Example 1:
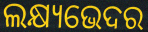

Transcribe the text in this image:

ଲକ୍ଷ୍ୟଭେଦର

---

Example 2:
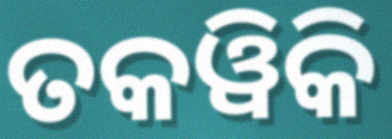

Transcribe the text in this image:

ତକୱିକି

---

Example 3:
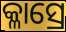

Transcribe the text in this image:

କ୍ଳାସ୍ରେ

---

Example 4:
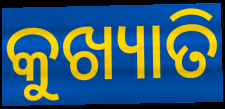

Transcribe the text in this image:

କୁଖ୍ୟାତି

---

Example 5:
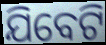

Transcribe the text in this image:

ଯିବେଟି